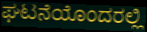
ಘಟನೆಯೊಂದರಲ್ಲಿ